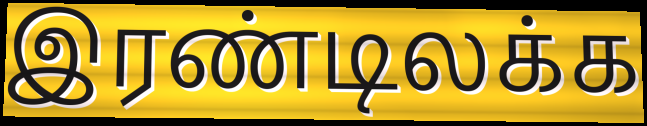
இரண்டிலக்க